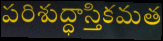
పరిశుద్ధాస్తికమత